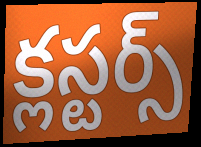
క్లస్టర్స్